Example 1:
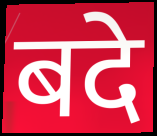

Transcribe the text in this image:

बदे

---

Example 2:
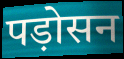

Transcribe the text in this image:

पड़ोसन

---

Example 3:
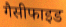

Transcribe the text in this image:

गैसीफाइड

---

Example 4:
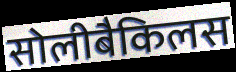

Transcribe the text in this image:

सोलीबैकिलस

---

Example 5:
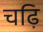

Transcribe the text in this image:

चढ़ि